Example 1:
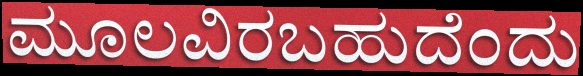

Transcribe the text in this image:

ಮೂಲವಿರಬಹುದೆಂದು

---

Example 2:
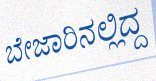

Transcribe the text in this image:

ಬೇಜಾರಿನಲ್ಲಿದ್ದ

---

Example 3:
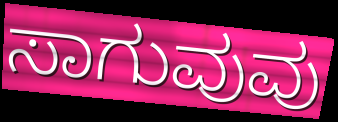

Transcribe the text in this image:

ಸಾಗುವುವು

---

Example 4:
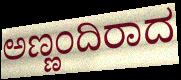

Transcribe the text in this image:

ಅಣ್ಣಂದಿರಾದ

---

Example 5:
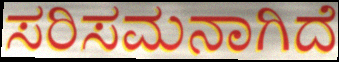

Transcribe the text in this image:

ಸರಿಸಮನಾಗಿದೆ